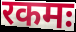
रकमः